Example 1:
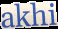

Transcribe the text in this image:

akhi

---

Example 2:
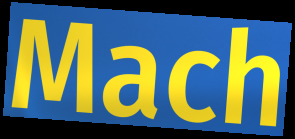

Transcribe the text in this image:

Mach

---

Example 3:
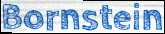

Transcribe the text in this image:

Bornstein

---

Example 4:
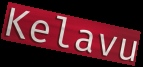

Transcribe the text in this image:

Kelavu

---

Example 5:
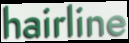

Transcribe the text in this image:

hairline